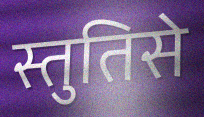
स्तुतिसे